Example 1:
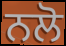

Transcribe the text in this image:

ਨਲੋ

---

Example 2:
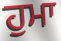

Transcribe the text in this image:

ਹੁਮਾ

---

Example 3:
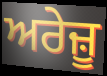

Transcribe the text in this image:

ਅਰੇਜ਼ੂ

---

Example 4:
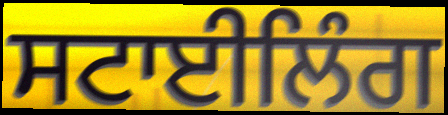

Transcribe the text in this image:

ਸਟਾਈਲਿੰਗ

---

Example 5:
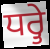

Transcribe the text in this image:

ਧਰ੍ਤੇ